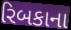
રિબકાના